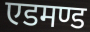
एडमण्ड